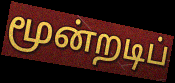
மூன்றடிப்